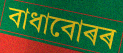
বাধাবোৰৰ